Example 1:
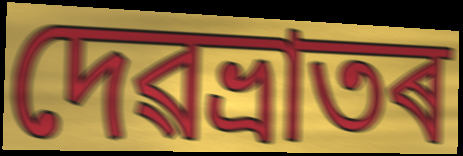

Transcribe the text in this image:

দেৱভ্ৰাতৰ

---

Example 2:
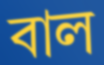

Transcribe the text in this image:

বাল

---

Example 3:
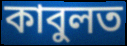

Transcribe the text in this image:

কাবুলত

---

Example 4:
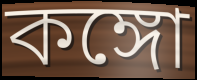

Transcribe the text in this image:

কঙ্গো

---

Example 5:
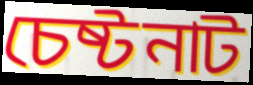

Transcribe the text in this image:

চেষ্টনাট